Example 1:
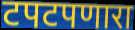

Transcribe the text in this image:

टपटपणारा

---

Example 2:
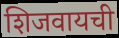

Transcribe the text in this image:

शिजवायची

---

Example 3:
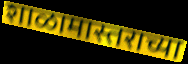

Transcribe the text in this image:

शाळामास्तराच्या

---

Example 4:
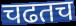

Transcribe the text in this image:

चढतच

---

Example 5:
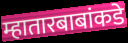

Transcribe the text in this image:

म्हातारबाबांकडे